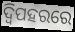
ଦ୍ୱିପହରରେ